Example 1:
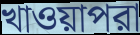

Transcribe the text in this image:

খাওয়াপরা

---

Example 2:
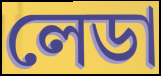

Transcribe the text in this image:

লেডা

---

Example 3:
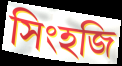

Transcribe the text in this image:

সিংহজি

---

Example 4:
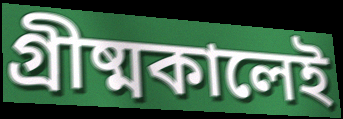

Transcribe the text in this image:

গ্রীষ্মকালেই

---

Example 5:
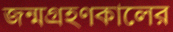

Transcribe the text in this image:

জন্মগ্রহণকালের